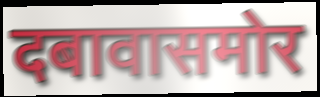
दबावासमोर